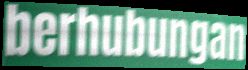
berhubungan